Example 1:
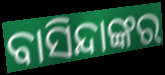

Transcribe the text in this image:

ବାସିନ୍ଦାଙ୍କର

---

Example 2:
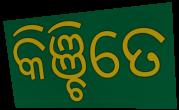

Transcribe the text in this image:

କିଞ୍ଚିତେ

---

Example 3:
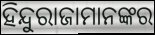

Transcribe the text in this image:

ହିନ୍ଦୁରାଜାମାନଙ୍କର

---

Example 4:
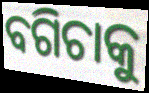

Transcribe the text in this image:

ବଗିଚାକୁ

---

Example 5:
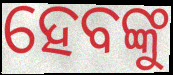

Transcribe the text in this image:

ହେବଙ୍କୁ